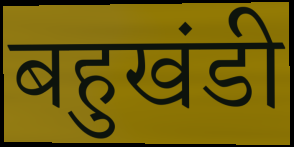
बहुखंडी